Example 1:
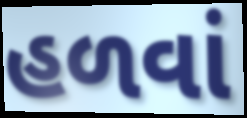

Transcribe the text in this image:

હળવાં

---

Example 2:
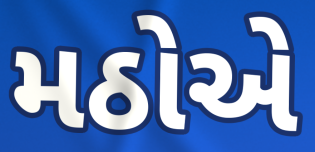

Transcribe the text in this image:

મઠોએ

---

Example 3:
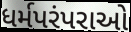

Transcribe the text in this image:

ધર્મપરંપરાઓ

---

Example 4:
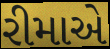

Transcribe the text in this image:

રીમાએ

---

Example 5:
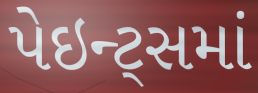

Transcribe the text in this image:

પેઇન્ટ્સમાં